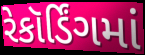
રેકૉર્ડિંગમાં